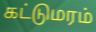
கட்டுமரம்